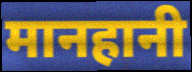
मानहानी